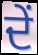
ਦੇਂ